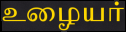
உழையர்